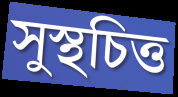
সুস্থচিত্ত